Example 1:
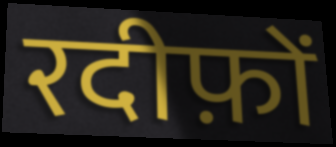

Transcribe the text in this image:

रदीफ़ों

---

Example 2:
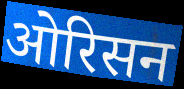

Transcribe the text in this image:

ओरिसन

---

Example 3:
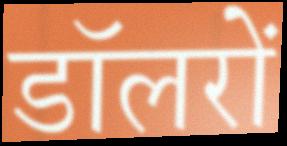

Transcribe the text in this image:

डॉलरों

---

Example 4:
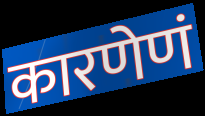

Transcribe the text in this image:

कारणेणं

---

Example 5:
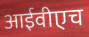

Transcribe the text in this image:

आईवीएच